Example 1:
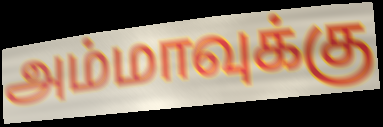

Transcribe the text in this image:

அம்மாவுக்கு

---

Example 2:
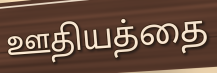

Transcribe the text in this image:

ஊதியத்தை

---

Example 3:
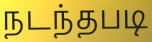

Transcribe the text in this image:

நடந்தபடி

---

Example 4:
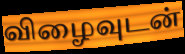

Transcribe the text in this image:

விழைவுடன்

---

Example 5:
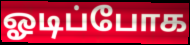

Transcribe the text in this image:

ஓடிப்போக